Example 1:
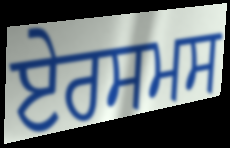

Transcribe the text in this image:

ਏਰਸਮਸ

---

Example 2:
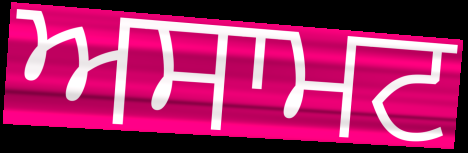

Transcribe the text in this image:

ਅਸਾਮਟ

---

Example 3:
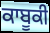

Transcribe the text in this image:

ਕਾਬੂਕੀ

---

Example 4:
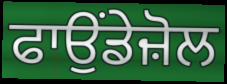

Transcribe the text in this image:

ਫਾਉਂਡੇਜ਼ੋਲ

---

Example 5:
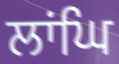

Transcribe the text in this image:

ਲਾਂਘਿ